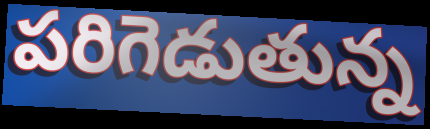
పరిగెడుతున్న